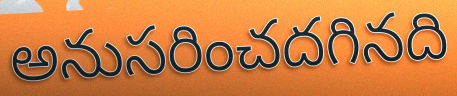
అనుసరించదగినది